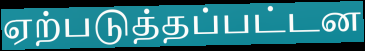
ஏற்படுத்தப்பட்டன